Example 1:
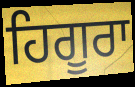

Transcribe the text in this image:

ਹਿਗੂਰਾ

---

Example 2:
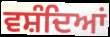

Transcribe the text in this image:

ਵਸ਼ੰਦਿਆਂ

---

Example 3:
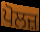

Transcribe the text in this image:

ਪੋਲਜ਼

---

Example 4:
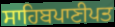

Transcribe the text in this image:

ਸਾਹਿਬਪਾਣੀਪਤ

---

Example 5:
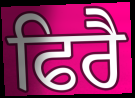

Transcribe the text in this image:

ਫਿਰੈ